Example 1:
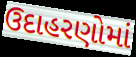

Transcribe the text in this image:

ઉદાહરણોમાં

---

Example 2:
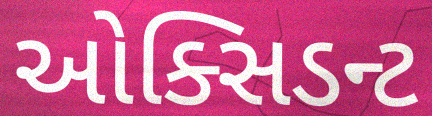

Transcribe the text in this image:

ઓક્સિડન્ટ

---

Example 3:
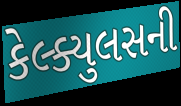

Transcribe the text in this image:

કેલ્ક્યુલસની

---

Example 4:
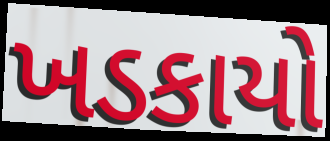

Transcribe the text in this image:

ખડકાયો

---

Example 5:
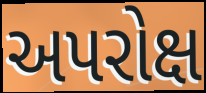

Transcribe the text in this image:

અપરોક્ષ